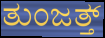
ತುಂಜತ್ತ್